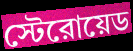
স্টেরোয়েড